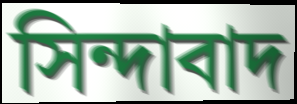
সিন্দাবাদ